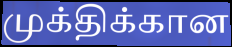
முக்திக்கான